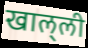
खाल्ली